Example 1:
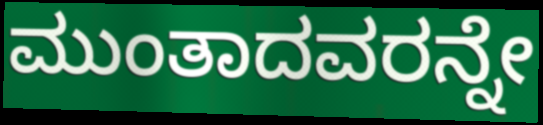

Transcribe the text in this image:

ಮುಂತಾದವರನ್ನೇ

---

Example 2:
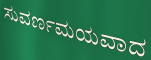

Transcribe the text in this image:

ಸುವರ್ಣಮಯವಾದ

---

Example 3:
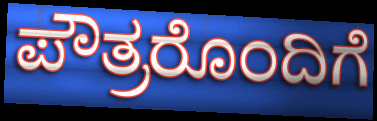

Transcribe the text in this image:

ಪೌತ್ರರೊಂದಿಗೆ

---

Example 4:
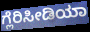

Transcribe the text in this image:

ಗ್ಲೆರಿಸೀಡಿಯಾ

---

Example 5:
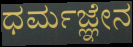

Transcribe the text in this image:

ಧರ್ಮಜ್ಞೇನ